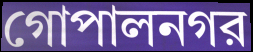
গোপালনগর